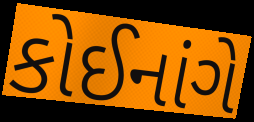
કોઈનાંગે